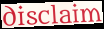
disclaim